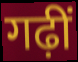
गढ़ीं